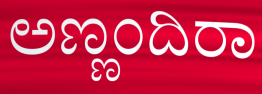
ಅಣ್ಣಂದಿರಾ